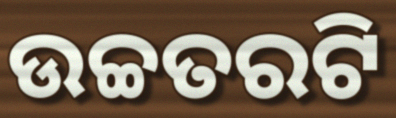
ଉଚ୍ଚତରଟି